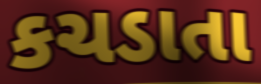
કચડાતા